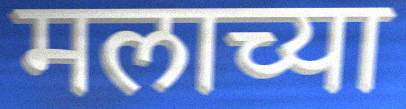
मलाच्या